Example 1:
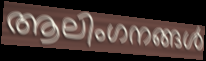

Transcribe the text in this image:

ആലിംഗനങ്ങൾ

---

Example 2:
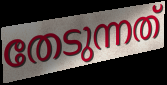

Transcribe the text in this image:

തേടുന്നത്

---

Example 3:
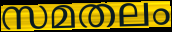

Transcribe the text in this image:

സമതലം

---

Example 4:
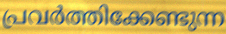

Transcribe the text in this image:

പ്രവർത്തിക്കേണ്ടുന്ന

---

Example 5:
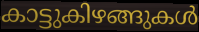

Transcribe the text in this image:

കാട്ടുകിഴങ്ങുകൾ